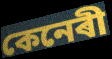
কেনেৰী